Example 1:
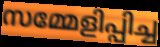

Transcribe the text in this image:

സമ്മേളിപ്പിച്ച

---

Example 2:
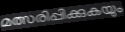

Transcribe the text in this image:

മത്സരിപ്പിക്കുകയും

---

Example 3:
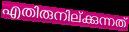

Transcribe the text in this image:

എതിരുനില്ക്കുന്നത്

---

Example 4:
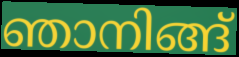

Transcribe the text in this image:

ഞാനിങ്ങ്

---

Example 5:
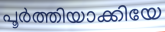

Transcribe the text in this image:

പൂർത്തിയാക്കിയേ